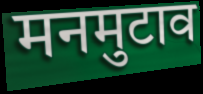
मनमुटाव